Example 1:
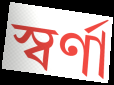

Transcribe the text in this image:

স্বর্ণা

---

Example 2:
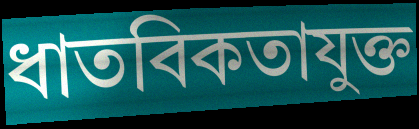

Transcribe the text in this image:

ধাতবিকতাযুক্ত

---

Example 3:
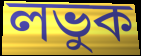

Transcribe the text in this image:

লভুক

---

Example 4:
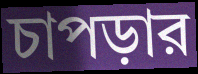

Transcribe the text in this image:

চাপড়ার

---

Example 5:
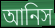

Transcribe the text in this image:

আনিস